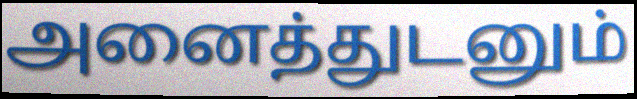
அனைத்துடனும்